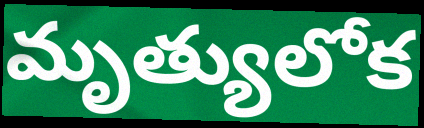
మృత్యులోక